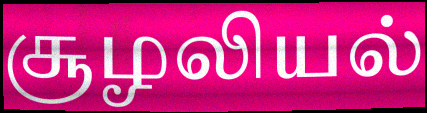
சூழலியல்